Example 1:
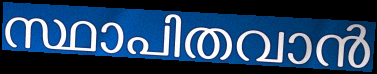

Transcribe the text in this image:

സ്ഥാപിതവാൻ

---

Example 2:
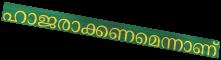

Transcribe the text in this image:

ഹാജരാക്കണമെന്നാണ്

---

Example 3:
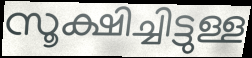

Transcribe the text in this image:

സൂക്ഷിച്ചിട്ടുള്ള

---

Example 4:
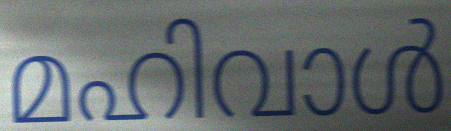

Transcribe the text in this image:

മഹിവാൾ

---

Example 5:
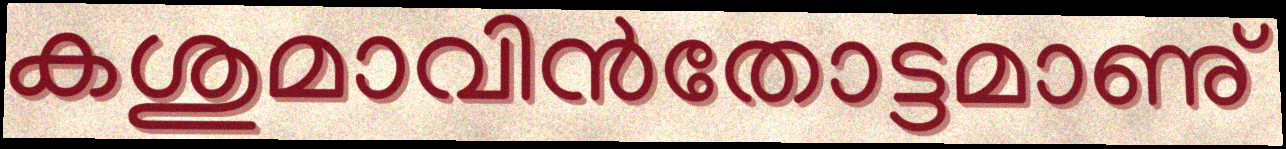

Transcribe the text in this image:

കശുമാവിൻതോട്ടമാണു്